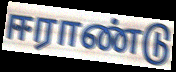
ஈராண்டு